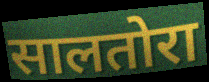
सालतोरा